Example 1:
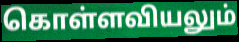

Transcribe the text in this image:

கொள்ளவியலும்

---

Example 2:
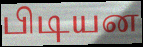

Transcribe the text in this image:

பிடியன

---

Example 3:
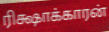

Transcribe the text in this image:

ரிக்ஷாக்காரன்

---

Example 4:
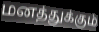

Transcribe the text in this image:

மனத்துக்கும்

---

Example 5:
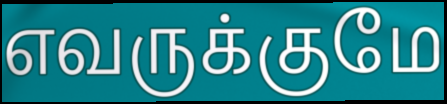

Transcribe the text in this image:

எவருக்குமே